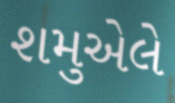
શમુએલે